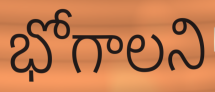
భోగాలని